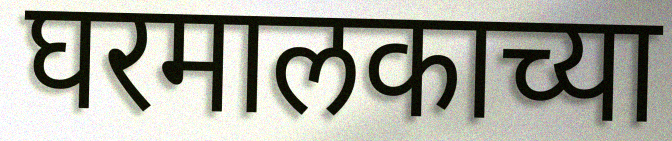
घरमालकाच्या